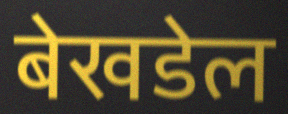
बेखडेल